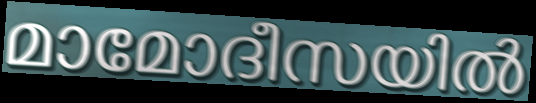
മാമോദീസയിൽ